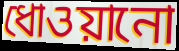
ধোওয়ানো